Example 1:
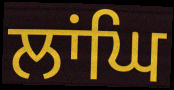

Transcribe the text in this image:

ਲਾਂਘਿ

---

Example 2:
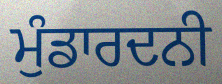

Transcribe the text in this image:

ਮੁੰਡਾਰਦਨੀ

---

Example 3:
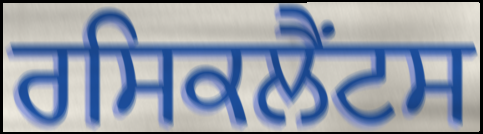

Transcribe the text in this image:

ਰਸਿਕਲੈਂਟਸ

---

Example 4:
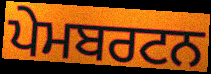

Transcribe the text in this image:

ਪੇਮਬਰਟਨ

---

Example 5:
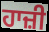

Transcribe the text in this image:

ਹਾਜ਼ੀ